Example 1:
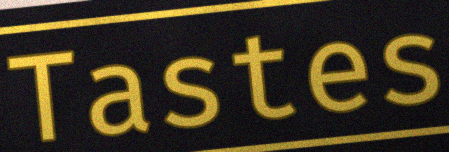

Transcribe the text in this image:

Tastes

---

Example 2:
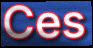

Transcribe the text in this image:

Ces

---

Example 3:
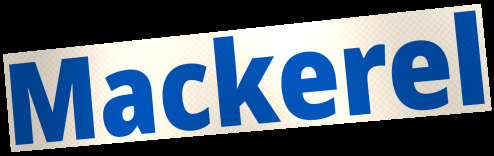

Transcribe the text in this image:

Mackerel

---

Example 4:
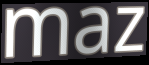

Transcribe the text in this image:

maz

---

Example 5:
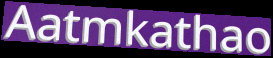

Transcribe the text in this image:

Aatmkathao